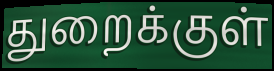
துறைக்குள்